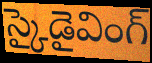
స్కైడైవింగ్